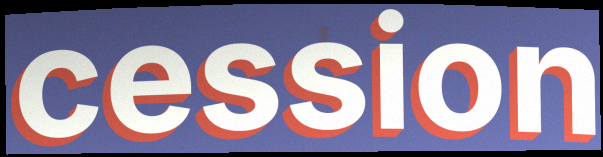
cession